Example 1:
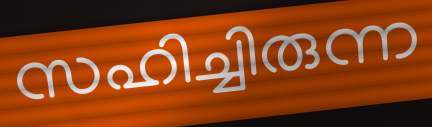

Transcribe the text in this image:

സഹിച്ചിരുന്ന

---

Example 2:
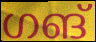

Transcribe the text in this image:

ഗങ്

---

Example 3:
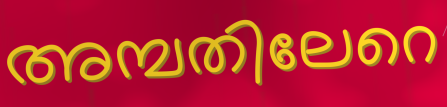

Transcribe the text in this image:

അമ്പതിലേറെ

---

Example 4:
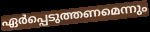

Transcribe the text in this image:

ഏർപ്പെടുത്തണമെന്നും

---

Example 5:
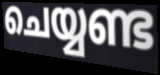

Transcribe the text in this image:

ചെയ്യണ്ട